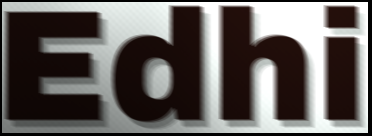
Edhi